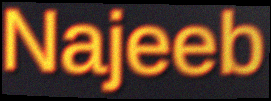
Najeeb